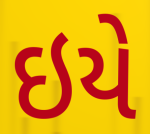
ઇયે